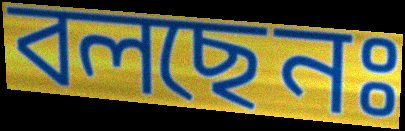
বলছেনঃ